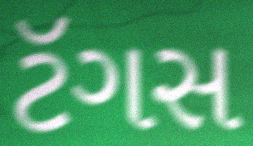
ટૅગસ